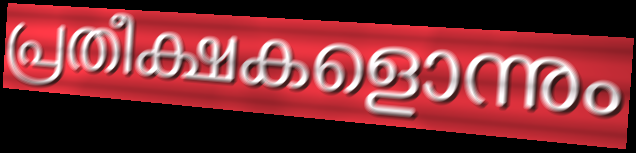
പ്രതീക്ഷകളൊന്നും